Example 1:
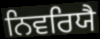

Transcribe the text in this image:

ਨਿਵਰਿਯੈ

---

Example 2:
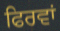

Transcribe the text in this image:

ਫਿਰਵਾਂ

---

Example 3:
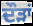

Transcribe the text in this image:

ਦੌੜਾਂ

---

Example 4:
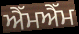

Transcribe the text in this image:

ਐੱਮਐੱਮ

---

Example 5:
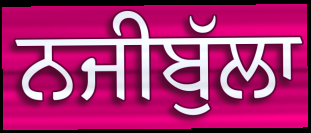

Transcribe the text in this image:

ਨਜੀਬੁੱਲਾ